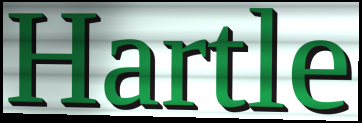
Hartle